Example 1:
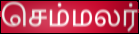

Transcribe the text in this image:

செம்மலர்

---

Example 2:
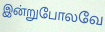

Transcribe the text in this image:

இன்றுபோலவே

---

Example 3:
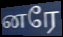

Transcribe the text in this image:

னரே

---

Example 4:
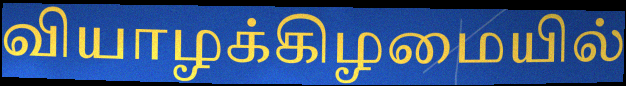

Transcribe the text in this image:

வியாழக்கிழமையில்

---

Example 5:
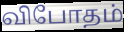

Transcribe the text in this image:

விபோதம்